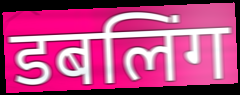
डबलिंग